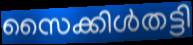
സൈക്കിൾതട്ടി